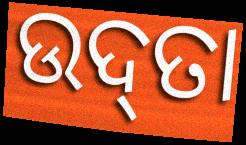
ଉଦ୍‌ତା